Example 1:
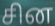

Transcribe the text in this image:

சின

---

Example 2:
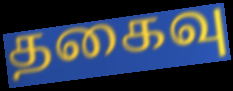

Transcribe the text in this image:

தகைவு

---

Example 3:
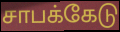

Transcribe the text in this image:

சாபக்கேடு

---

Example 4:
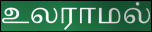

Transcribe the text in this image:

உலராமல்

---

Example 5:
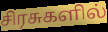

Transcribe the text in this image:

சிரசுகளில்